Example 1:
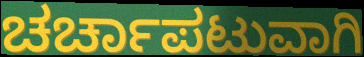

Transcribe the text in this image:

ಚರ್ಚಾಪಟುವಾಗಿ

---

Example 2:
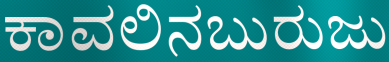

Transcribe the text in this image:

ಕಾವಲಿನಬುರುಜು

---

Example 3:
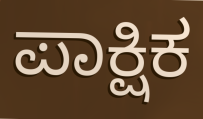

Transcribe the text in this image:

ಪಾಕ್ಷಿಕ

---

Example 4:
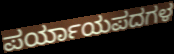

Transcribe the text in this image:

ಪರ್ಯಾಯಪದಗಳ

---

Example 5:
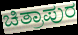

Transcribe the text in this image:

ಚಿತ್ರಾಪುರ